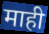
माही